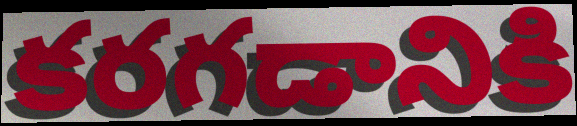
కరగడానికి